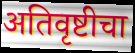
अतिवृष्टीचा